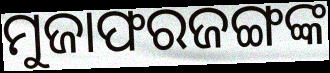
ମୁଜାଫରଜଙ୍ଗଙ୍କ